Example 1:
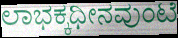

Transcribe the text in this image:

ಲಾಭಕ್ಕಧೀನವುಂಟೆ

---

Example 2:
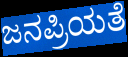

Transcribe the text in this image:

ಜನಪ್ರಿಯತೆ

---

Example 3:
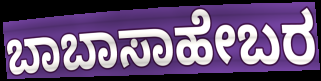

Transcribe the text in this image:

ಬಾಬಾಸಾಹೇಬರ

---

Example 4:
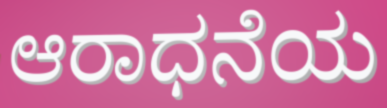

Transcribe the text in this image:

ಆರಾಧನೆಯ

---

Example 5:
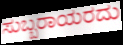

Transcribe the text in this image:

ಸುಬ್ಬರಾಯರದು